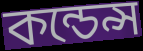
কন্ডেন্স